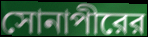
সোনাপীরের